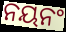
ନୟନଂ